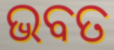
ଭବତ